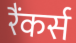
रैंकर्स